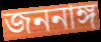
জননাঙ্গ